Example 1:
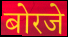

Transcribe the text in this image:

बोरजे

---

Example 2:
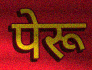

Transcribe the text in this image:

पेरू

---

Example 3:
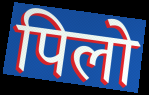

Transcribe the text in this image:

पिलो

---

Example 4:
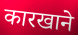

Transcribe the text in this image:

कारखाने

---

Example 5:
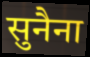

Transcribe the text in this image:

सुनैना